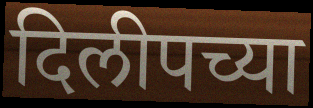
दिलीपच्या